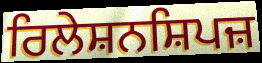
ਰਿਲੇਸ਼ਨਸ਼ਿਪਜ਼